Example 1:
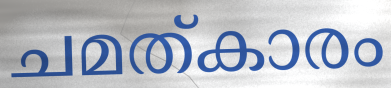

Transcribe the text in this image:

ചമത്കാരം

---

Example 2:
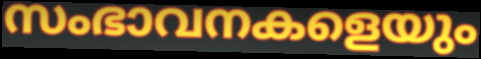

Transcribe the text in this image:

സംഭാവനകളെയും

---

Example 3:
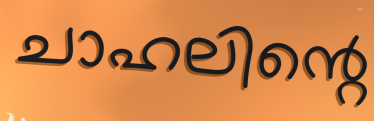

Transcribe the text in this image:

ചാഹലിന്റെ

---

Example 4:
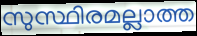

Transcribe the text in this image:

സുസ്ഥിരമല്ലാത്ത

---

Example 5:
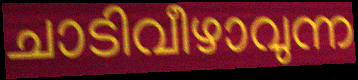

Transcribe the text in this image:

ചാടിവീഴാവുന്ന